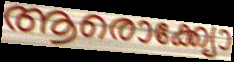
ആരൊക്ക്യോ